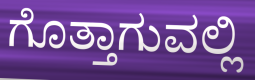
ಗೊತ್ತಾಗುವಲ್ಲಿ